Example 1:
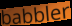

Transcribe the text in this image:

babbler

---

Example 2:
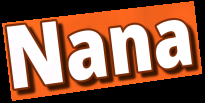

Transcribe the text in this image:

Nana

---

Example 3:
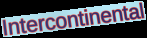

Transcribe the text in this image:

Intercontinental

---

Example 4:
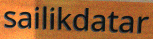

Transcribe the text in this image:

sailikdatar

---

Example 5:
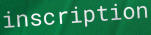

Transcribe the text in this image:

inscription